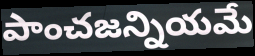
పాంచజన్నియమే